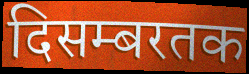
दिसम्बरतक